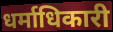
धर्माधिकारी